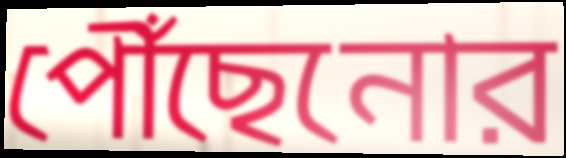
পৌঁছেনোর